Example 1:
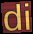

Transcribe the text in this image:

di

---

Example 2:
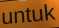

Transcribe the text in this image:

untuk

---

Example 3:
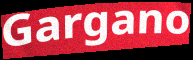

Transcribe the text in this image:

Gargano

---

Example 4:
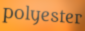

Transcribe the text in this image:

polyester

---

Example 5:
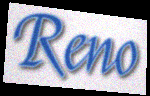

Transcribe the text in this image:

Reno